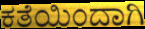
ಕತೆಯಿಂದಾಗಿ